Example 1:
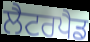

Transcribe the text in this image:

ਲੈਟਰਪੈਡ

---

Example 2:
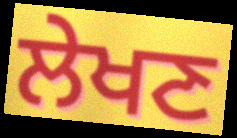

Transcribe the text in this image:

ਲੇਖਣ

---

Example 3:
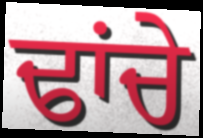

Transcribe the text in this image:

ਢਾਂਚੇ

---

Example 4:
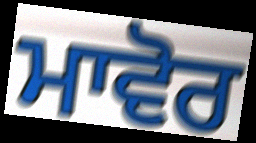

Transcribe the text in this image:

ਮਾਵੋਰ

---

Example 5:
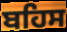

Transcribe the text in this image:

ਬਹਿਸ